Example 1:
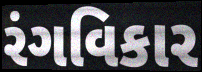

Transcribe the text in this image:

રંગવિકાર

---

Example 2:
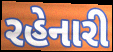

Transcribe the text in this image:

રહેનારી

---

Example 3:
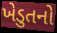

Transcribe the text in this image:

ખેડુતનો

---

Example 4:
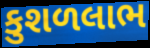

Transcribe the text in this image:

કુશળલાભ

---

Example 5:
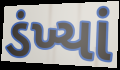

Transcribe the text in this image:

ડંખ્યાં